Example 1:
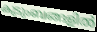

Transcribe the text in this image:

കുടുംബങ്ങളിൽ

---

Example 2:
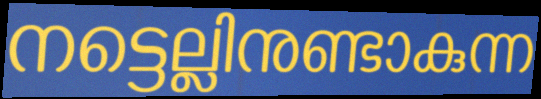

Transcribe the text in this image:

നട്ടെല്ലിനുണ്ടാകുന്ന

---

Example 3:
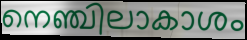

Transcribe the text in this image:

നെഞ്ചിലാകാശം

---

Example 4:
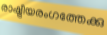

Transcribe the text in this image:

രാഷ്ട്രീയരംഗത്തേക്കു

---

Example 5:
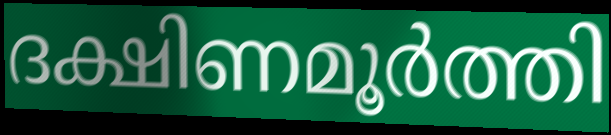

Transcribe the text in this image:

ദക്ഷിണമൂർത്തി